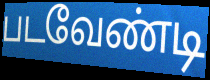
படவேண்டி